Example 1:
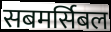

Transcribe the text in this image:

सबमर्सिबल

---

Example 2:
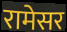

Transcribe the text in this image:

रामेसर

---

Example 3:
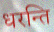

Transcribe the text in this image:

धरन्ति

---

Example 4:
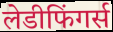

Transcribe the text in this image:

लेडीफिंगर्स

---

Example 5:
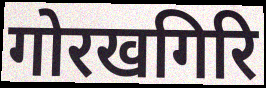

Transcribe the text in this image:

गोरखगिरि